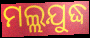
ମଲ୍ଲଯୁଦ୍ଧ